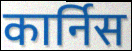
कार्निस